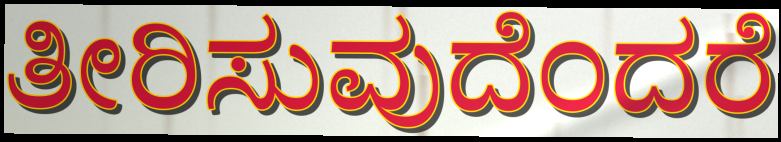
ತೀರಿಸುವುದೆಂದರೆ